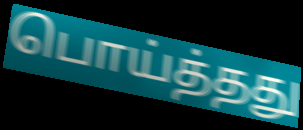
பொய்த்தது